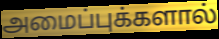
அமைப்புக்களால்